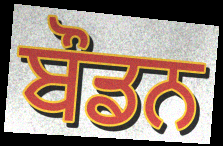
ਬੌਡਨ